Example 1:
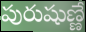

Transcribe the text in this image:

పురుషుణ్ణే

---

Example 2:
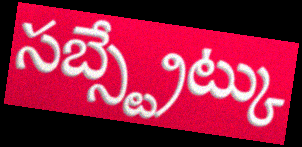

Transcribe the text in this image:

సబ్స్ట్రేట్కు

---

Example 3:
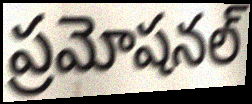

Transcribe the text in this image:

ప్రమోషనల్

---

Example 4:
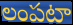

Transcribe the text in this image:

లంపటా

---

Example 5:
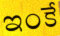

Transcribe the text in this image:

ఇంకే